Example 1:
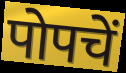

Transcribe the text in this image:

पोपचें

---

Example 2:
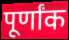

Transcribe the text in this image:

पूर्णांक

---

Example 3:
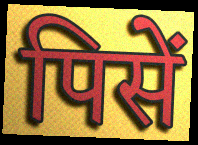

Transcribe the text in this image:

पिसें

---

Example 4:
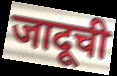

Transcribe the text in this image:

जादूची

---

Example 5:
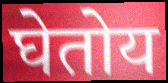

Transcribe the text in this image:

घेतोय